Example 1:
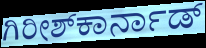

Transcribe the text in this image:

ಗಿರೀಶ್‌ಕಾರ್ನಾಡ್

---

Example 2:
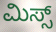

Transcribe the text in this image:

ಮಿಸ್ಸ್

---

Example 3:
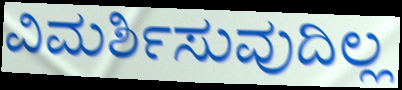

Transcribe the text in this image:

ವಿಮರ್ಶಿಸುವುದಿಲ್ಲ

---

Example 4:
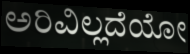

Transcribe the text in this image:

ಅರಿವಿಲ್ಲದೆಯೋ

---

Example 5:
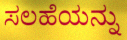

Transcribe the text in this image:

ಸಲಹೆಯನ್ನು